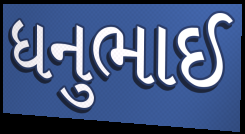
ધનુભાઈ